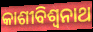
କାଶୀବିଶ୍ୱନାଥ